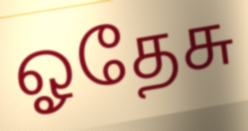
ஓதேசு